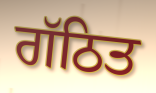
ਗੱਠਿਤ